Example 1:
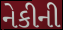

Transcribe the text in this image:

નેકીની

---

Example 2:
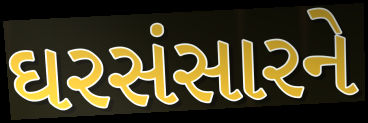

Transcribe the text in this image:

ઘરસંસારને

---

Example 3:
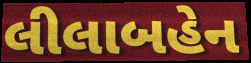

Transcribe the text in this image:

લીલાબહેન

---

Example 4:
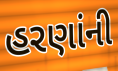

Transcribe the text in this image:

હરણાંની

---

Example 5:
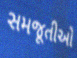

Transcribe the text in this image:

સમજૂતીઓ